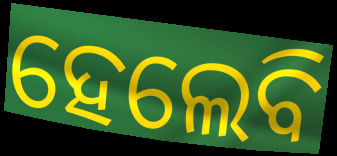
ହେଲେବି